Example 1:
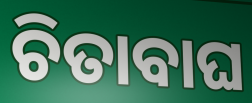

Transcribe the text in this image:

ଚିତାବାଘ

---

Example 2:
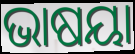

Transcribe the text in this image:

ଭାଷୟା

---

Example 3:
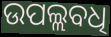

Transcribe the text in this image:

ଉପଲ୍ଲବଧି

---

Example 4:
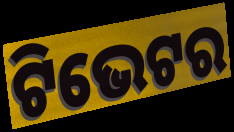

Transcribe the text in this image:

ଟିଭେଟର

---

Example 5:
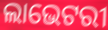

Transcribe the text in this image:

ଲାଭେଟରୀ